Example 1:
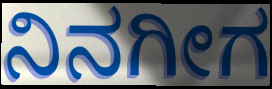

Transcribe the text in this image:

ನಿನಗೀಗ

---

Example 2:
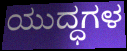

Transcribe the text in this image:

ಯುದ್ಧಗಳ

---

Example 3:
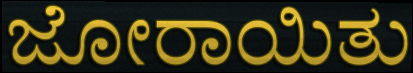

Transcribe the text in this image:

ಜೋರಾಯಿತು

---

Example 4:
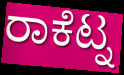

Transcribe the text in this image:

ರಾಕೆಟ್ನ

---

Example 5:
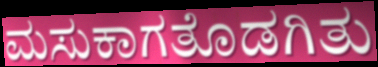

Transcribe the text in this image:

ಮಸುಕಾಗತೊಡಗಿತು